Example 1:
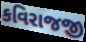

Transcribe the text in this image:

કવિરાજજી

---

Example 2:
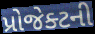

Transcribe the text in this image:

પ્રોજેક્ટની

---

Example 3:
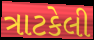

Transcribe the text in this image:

ત્રાટકેલી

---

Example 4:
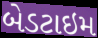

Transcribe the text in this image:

બેડટાઇમ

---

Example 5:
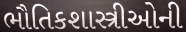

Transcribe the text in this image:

ભૌતિકશાસ્ત્રીઓની